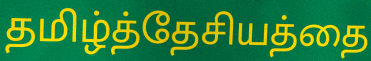
தமிழ்த்தேசியத்தை